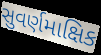
સુવર્ણમાક્ષિક